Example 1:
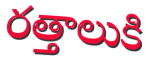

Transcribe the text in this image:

రత్తాలుకి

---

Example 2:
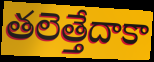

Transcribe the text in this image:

తలెత్తేదాకా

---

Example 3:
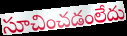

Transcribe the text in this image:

సూచించడంలేదు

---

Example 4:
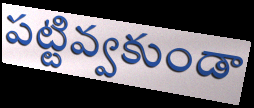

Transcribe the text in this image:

పట్టివ్వకుండా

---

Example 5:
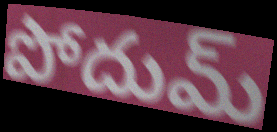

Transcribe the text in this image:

పోదుమ్